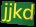
jjkd